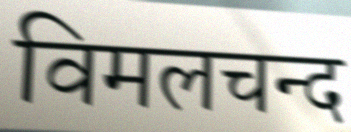
विमलचन्द